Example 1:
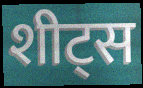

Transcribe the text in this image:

शीट्स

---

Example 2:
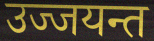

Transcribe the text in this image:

उज्जयन्त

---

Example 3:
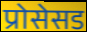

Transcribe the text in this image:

प्रोसेसड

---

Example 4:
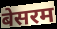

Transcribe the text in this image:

बेसरम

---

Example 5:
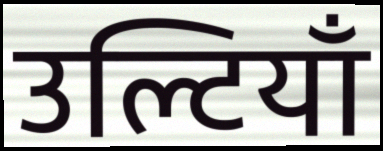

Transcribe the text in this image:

उल्टियाँ